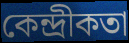
কেন্দ্রীকতা